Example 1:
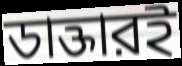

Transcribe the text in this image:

ডাক্তারই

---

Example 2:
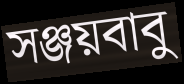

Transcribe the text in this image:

সঞ্জয়বাবু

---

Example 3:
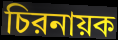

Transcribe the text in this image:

চিরনায়ক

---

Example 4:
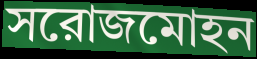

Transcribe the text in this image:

সরোজমোহন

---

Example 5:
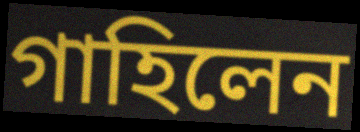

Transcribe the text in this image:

গাহিলেন